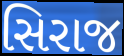
સિરાજ